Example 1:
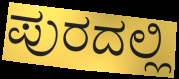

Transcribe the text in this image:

ಪುರದಲ್ಲಿ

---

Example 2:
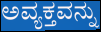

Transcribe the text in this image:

ಅವ್ಯಕ್ತವನ್ನು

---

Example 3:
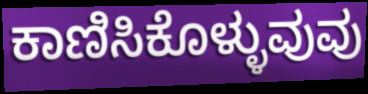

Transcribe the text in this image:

ಕಾಣಿಸಿಕೊಳ್ಳುವುವು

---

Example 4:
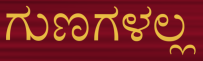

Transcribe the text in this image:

ಗುಣಗಳಲ್ಲ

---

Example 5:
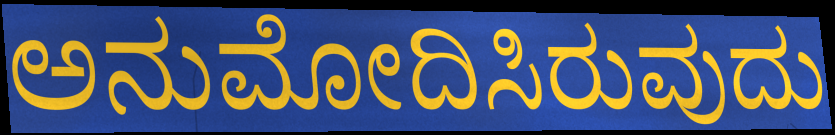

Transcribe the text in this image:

ಅನುಮೋದಿಸಿರುವುದು